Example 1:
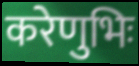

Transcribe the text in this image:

करेणुभिः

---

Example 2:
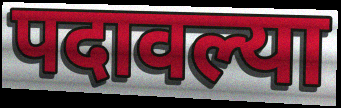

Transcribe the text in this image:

पदावल्या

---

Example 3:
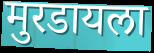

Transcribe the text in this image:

मुरडायला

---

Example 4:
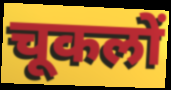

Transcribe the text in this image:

चूकलों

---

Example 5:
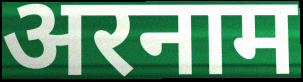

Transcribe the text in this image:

अरनाम